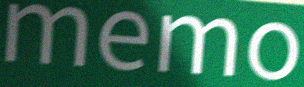
memo